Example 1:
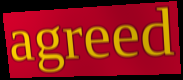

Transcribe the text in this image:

agreed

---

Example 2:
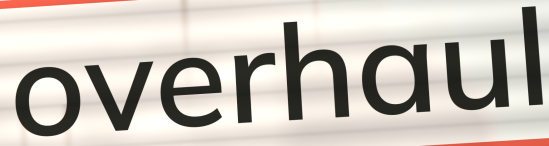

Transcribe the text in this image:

overhaul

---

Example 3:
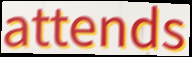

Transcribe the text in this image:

attends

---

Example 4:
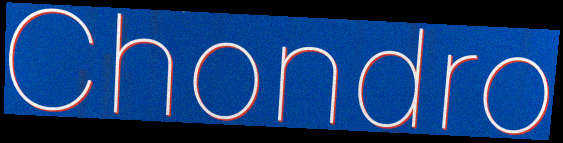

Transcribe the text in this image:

Chondro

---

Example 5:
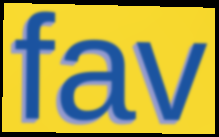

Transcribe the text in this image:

fav